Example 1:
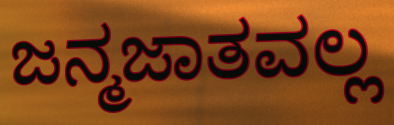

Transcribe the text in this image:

ಜನ್ಮಜಾತವಲ್ಲ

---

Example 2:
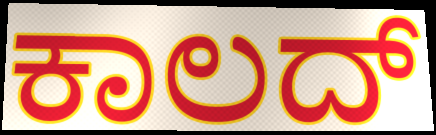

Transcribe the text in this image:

ಕಾಲದ್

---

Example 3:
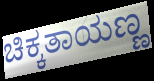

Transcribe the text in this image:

ಚಿಕ್ಕತಾಯಣ್ಣ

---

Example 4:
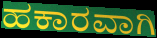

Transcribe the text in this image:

ಹಕಾರವಾಗಿ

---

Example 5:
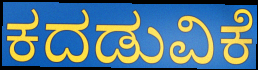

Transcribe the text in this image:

ಕದಡುವಿಕೆ